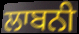
ਲਾਬਨੀ